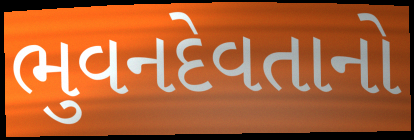
ભુવનદેવતાનો